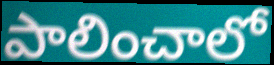
పాలించాలో